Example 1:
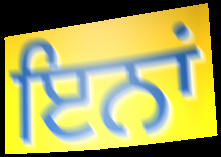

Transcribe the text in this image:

ਇਨਾਂ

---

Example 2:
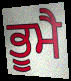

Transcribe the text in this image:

ਭੂਮੈ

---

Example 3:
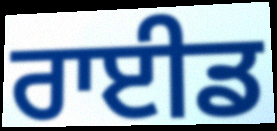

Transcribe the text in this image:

ਰਾਈਡ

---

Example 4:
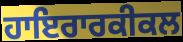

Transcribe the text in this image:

ਹਾਇਰਾਰਕੀਕਲ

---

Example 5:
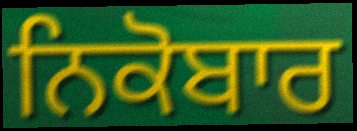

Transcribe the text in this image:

ਨਿਕੋਬਾਰ